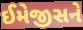
ઈમેજીસને